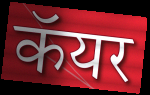
कॅयर